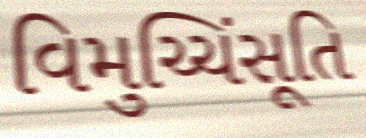
વિમુચ્ચિંસૂતિ